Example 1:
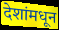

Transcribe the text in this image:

देशांमधून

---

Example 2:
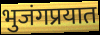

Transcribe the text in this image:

भुजंगप्रयात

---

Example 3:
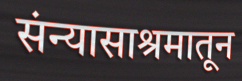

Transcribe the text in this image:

संन्यासाश्रमातून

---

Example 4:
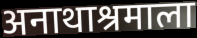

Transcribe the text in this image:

अनाथाश्रमाला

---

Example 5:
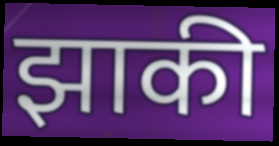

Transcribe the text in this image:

झाकी